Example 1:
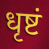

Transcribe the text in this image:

धृष्टं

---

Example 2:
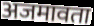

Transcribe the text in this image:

अजमावता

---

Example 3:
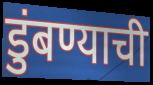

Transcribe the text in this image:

डुंबण्याची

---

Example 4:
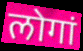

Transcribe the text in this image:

लोगां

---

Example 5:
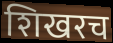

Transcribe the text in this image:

शिखरच